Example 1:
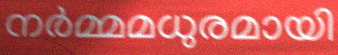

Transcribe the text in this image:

നർമ്മമധുരമായി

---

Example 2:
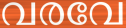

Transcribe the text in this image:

വരവേ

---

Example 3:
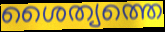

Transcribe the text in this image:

ശൈത്യത്തെ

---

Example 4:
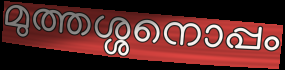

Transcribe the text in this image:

മുത്തശ്ശനൊപ്പം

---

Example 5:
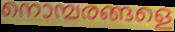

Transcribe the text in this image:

നൊമ്പരങ്ങളെ